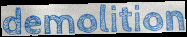
demolition